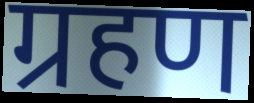
ग्रहण